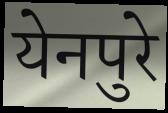
येनपुरे